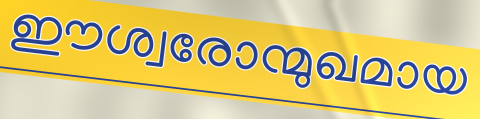
ഈശ്വരോന്മുഖമായ